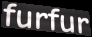
furfur